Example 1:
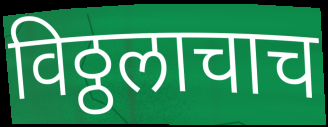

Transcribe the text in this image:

विठ्ठलाचाच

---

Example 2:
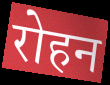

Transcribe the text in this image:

रोहन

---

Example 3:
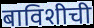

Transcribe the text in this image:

बाविशीची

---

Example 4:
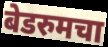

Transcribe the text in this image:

बेडरुमचा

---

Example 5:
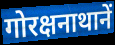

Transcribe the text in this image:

गोरक्षनाथानें